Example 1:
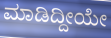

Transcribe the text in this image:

ಮಾಡಿದ್ದೀಯೇ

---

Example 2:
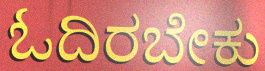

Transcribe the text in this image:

ಓದಿರಬೇಕು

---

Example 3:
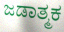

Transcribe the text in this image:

ಜಡಾತ್ಮಕ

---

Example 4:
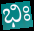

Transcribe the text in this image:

ಭಿಃ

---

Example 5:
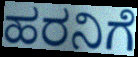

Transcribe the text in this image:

ಹರನಿಗೆ